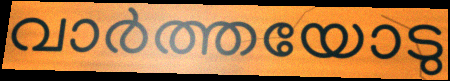
വാർത്തയോടു